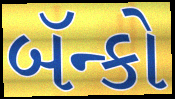
બૅન્કો